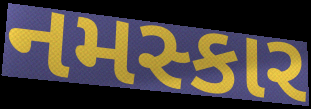
નમસ્કાર